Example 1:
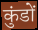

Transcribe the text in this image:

कुंडों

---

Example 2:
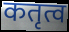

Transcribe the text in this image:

कतृत्व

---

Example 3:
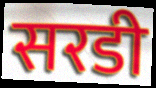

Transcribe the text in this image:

सरडी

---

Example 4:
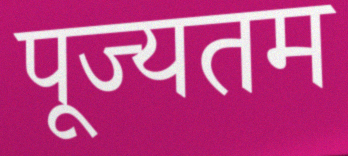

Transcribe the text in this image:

पूज्यतम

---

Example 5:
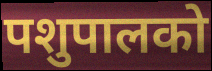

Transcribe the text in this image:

पशुपालको